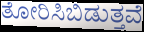
ತೋರಿಸಿಬಿಡುತ್ತವೆ